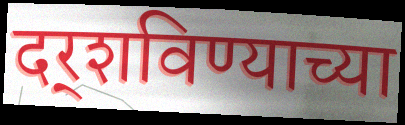
दर्शविण्याच्या